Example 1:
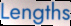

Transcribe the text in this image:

Lengths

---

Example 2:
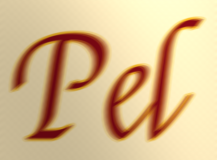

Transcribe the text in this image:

Pel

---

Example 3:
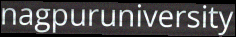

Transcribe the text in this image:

nagpuruniversity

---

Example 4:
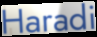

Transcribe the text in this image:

Haradi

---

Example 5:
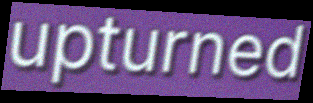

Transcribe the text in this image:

upturned